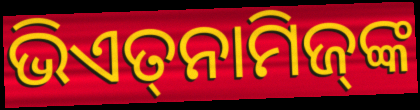
ଭିଏତ୍‌ନାମିଜ୍‌ଙ୍କ